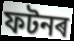
ফটনৰ